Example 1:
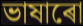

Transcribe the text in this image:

ভাষাৰো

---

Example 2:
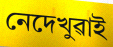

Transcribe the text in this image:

নেদেখুৱাই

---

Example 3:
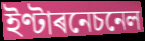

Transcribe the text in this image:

ইণ্টাৰনেচনেল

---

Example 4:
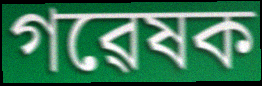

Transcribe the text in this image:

গৱেষক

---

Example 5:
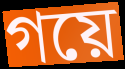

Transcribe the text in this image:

গয়ে